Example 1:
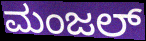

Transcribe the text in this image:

ಮಂಜಲ್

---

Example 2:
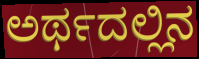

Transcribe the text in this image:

ಅರ್ಥದಲ್ಲಿನ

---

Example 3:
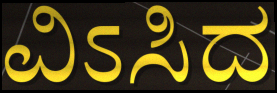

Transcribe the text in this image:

ವಿಽಸಿದ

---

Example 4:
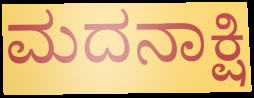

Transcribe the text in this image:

ಮದನಾಕ್ಷಿ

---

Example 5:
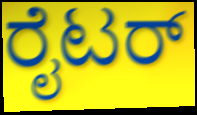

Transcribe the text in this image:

ರೈಟರ್